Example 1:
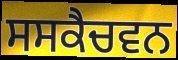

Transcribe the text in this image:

ਸਸਕੈਚਵਨ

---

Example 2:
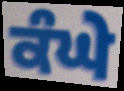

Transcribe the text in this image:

ਕੰਘੇ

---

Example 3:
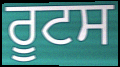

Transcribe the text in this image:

ਰੂਟਸ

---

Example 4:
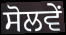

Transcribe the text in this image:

ਸੋਲਵੇਂ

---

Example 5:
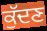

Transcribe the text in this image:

ਕੁੱਦਣ